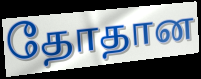
தோதான